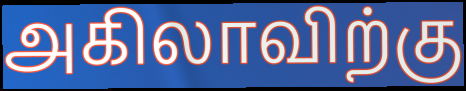
அகிலாவிற்கு